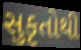
સુકૃતોથી